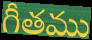
గీతము